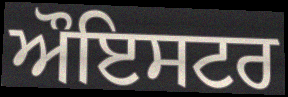
ਔਇਸਟਰ